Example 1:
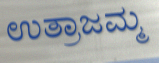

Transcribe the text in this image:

ಉತ್ರಾಜಮ್ಮ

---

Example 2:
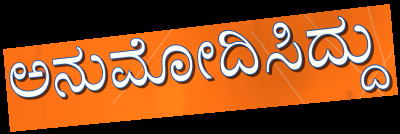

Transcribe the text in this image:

ಅನುಮೋದಿಸಿದ್ದು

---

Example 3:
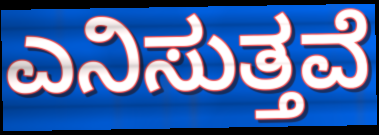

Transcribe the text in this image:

ಎನಿಸುತ್ತವೆ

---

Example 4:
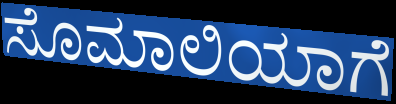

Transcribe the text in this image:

ಸೊಮಾಲಿಯಾಗೆ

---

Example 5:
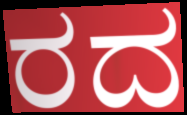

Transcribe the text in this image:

ರದ